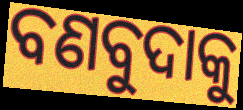
ବଣବୁଦାକୁ